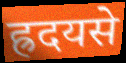
ह्रदयसे